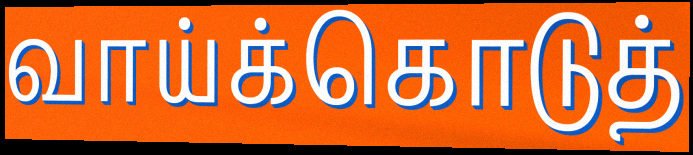
வாய்க்கொடுத்